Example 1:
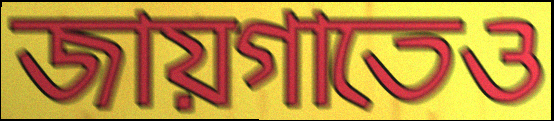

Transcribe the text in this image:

জায়গাতেও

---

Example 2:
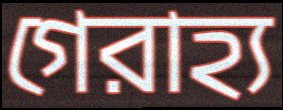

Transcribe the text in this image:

গেরাহ্য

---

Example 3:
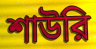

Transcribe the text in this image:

শাউরি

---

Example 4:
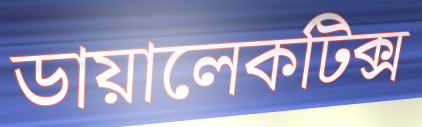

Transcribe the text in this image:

ডায়ালেকটিক্স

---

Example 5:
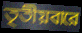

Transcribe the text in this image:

তৃতীয়বারে